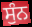
ਸੁੰਨ